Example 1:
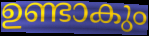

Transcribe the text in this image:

ഉണ്ടാകും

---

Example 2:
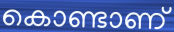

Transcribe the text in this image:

കൊണ്ടാണ്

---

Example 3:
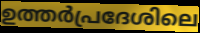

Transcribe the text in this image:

ഉത്തർപ്രദേശിലെ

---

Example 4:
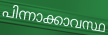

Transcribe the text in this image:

പിന്നാക്കാവസ്ഥ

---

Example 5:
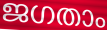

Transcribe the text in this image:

ജഗതാം